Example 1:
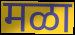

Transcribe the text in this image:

मळा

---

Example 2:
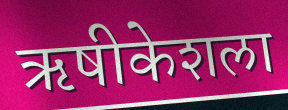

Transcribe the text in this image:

ऋषीकेशला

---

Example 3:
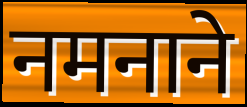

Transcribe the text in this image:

नमनाने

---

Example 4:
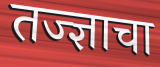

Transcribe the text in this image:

तज्ज्ञाचा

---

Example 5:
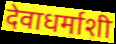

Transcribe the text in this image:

देवाधर्माशी